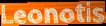
Leonotis